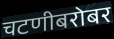
चटणीबरोबर